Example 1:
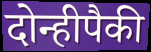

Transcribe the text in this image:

दोन्हीपैकी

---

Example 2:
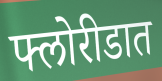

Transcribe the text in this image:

फ्लोरीडात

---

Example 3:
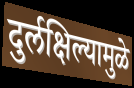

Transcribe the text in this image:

दुर्लक्षिल्यामुळे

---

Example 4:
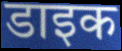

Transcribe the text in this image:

डाइक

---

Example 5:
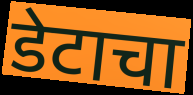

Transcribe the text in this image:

डेटाचा